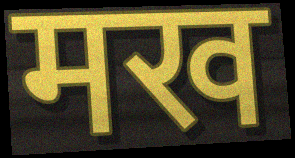
मख